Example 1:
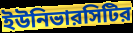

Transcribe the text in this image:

ইউনিভারসিটির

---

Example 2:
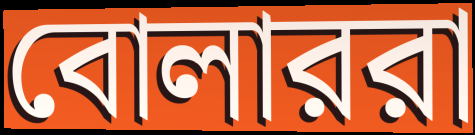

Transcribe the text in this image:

বোলাররা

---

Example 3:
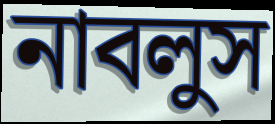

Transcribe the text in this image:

নাবলুস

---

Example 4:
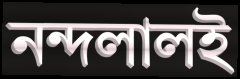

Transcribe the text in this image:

নন্দলালই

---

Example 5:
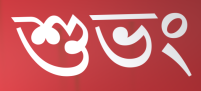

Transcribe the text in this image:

শুভং